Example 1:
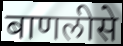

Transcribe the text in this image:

बाणलीसे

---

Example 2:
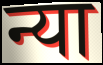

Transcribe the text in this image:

न्या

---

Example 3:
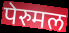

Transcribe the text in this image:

पेरुमल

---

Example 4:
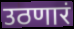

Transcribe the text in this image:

उठणारं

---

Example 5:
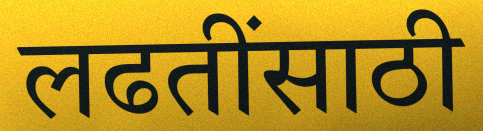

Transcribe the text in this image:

लढतींसाठी